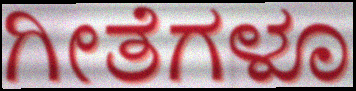
ಗೀತೆಗಳೂ